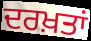
ਦਰਖ਼ਤਾਂ